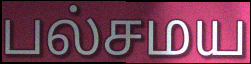
பல்சமய